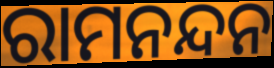
ରାମନନ୍ଦନ